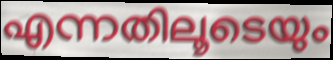
എന്നതിലൂടെയും